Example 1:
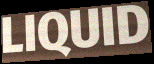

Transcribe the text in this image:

LIQUID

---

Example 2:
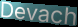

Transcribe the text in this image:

Devach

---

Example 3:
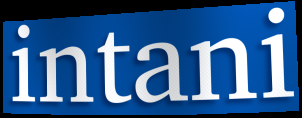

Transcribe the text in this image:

intani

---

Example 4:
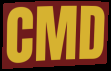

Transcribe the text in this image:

CMD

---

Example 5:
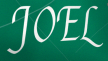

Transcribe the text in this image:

JOEL